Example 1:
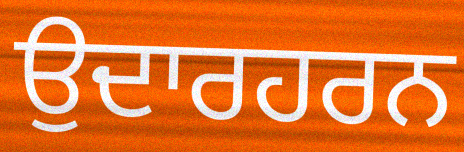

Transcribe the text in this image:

ਉਦਾਰਹਰਨ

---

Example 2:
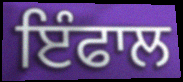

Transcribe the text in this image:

ਇੰਫਾਲ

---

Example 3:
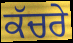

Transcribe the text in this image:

ਕੱਚਰੇ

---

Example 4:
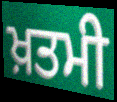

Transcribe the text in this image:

ਖ਼ਤਮੀ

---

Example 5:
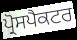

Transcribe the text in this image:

ਪ੍ਰੋਸਪੈਕਟਰ